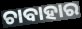
ଚାବାହାର